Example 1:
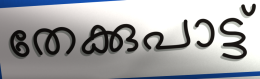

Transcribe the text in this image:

തേക്കുപാട്ട്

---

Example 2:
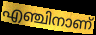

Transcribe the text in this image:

എഞ്ചിനാണ്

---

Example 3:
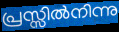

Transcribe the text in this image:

പ്രസ്സിൽനിന്നു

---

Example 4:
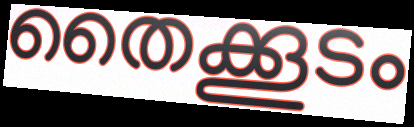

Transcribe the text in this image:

തൈക്കൂടം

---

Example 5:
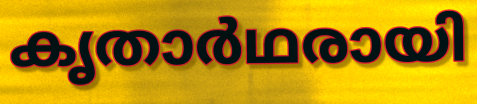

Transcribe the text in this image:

കൃതാർഥരായി